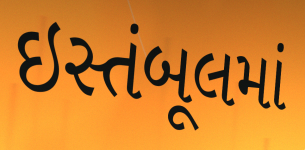
ઇસ્તંબૂલમાં